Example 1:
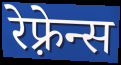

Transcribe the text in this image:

रेफ़्रेन्स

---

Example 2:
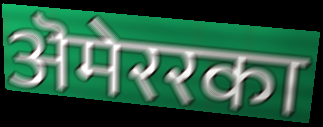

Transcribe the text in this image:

ऄमेररका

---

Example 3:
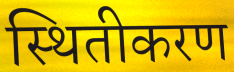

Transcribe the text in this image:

स्थितीकरण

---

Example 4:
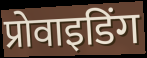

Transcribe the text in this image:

प्रोवाइडिंग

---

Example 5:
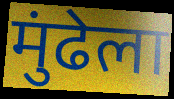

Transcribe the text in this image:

मुंढेला